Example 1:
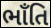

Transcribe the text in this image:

ભાઁતિ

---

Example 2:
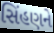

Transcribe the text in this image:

સિંહણને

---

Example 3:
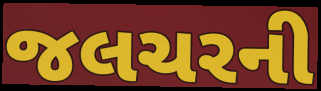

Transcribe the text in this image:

જલચરની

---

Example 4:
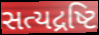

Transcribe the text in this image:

સત્યદ્રષ્ટિ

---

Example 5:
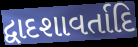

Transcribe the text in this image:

દ્વાદશાવર્તાદિ